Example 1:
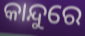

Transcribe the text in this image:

କାନ୍ଦୁରେ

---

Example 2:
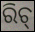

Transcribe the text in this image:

ରିଚ୍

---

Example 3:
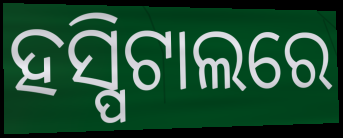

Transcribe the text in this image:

ହସ୍ପିଟାଲରେ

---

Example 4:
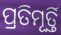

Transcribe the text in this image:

ପ୍ରତିମୂର୍ତ୍ତି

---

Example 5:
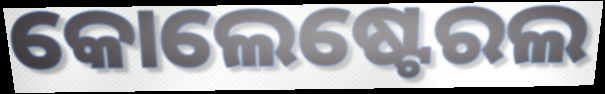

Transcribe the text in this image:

କୋଲେଷ୍ଟେରଲ